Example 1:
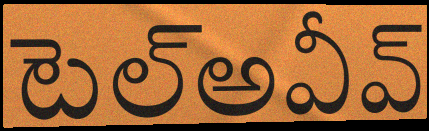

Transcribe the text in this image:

టెల్అవీవ్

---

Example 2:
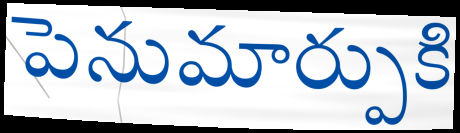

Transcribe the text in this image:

పెనుమార్పుకి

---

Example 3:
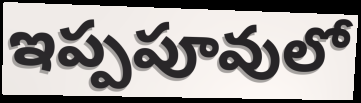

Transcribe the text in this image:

ఇప్పపూవులో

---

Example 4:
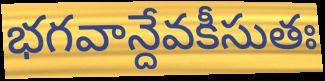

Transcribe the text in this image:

భగవాన్దేవకీసుతః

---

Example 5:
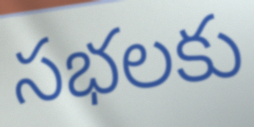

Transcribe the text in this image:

సభలకు